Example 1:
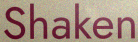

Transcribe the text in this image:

Shaken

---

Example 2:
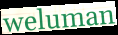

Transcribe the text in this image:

weluman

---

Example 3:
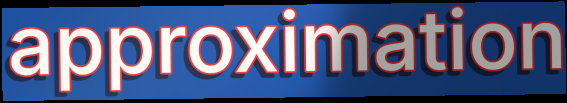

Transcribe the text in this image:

approximation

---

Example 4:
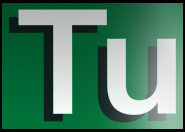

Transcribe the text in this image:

Tu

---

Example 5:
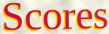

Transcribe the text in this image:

Scores